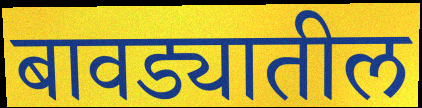
बावड्यातील